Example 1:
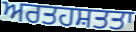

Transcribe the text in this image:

ਅਰਤਹਸ਼ਤਤਾ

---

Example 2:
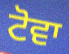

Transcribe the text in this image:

ਟੋਵਾ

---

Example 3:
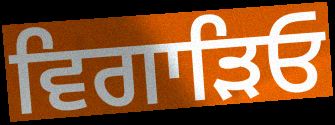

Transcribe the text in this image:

ਵਿਗਾੜਿਓ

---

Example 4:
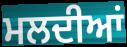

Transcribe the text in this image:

ਮਲਦੀਆਂ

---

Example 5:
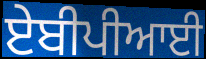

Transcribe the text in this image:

ਏਬੀਪੀਆਈ